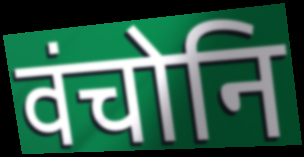
वंचोनि